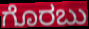
ಗೊರಬು